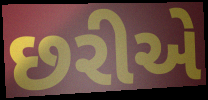
છરીએ